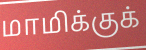
மாமிக்குக்